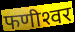
फणीश्वर